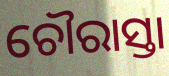
ଚୌରାସ୍ତା